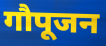
गौपूजन